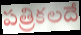
పత్రికలదే